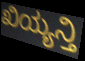
ಖಿಯ್ಯನ್ತಿ